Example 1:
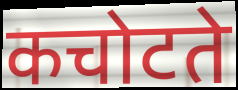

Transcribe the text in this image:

कचोटते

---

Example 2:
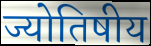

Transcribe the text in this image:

ज्योतिषीय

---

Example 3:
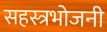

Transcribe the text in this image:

सहस्त्रभोजनी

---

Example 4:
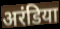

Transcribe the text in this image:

अरंडिया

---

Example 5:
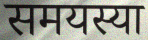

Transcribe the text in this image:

समयस्या